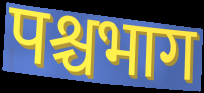
पश्चभाग